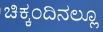
ಚಿಕ್ಕಂದಿನಲ್ಲೂ